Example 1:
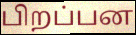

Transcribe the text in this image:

பிறப்பன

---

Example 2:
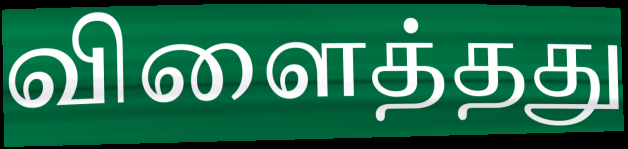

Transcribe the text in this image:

விளைத்தது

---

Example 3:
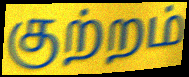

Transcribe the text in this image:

குற்றம்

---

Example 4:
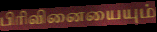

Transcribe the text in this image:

பிரிவினையையும்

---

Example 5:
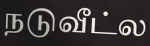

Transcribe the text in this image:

நடுவீட்ல